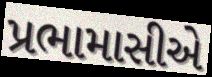
પ્રભામાસીએ